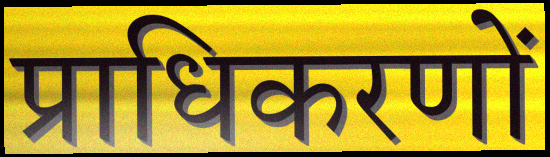
प्राधिकरणों